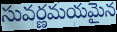
సువర్ణమయమైన